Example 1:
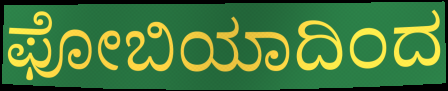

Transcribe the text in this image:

ಫೋಬಿಯಾದಿಂದ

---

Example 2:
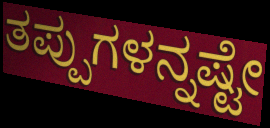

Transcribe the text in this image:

ತಪ್ಪುಗಳನ್ನಷ್ಟೇ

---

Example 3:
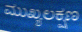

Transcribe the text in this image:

ಮುಖ್ಯಲಕ್ಷಣ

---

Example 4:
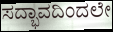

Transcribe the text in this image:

ಸದ್ಭಾವದಿಂದಲೇ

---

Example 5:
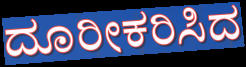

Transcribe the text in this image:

ದೂರೀಕರಿಸಿದ